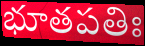
భూతపతిః